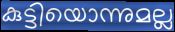
കുട്ടിയൊന്നുമല്ല